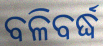
ବଳିବର୍ଦ୍ଧ